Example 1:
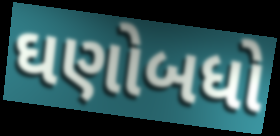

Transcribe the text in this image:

ઘણોબધો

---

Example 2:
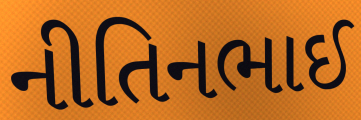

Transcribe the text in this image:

નીતિનભાઈ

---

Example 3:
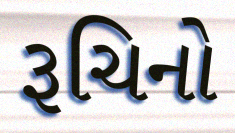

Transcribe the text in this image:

રૂચિનો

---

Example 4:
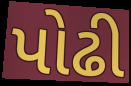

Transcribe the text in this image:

પોઢી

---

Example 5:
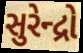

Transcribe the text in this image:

સુરેન્દ્રો